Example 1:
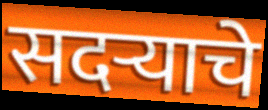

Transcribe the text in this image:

सदऱ्याचे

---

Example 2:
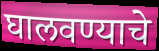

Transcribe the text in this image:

घालवण्याचे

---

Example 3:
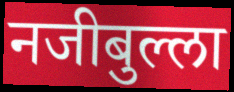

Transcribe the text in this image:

नजीबुल्ला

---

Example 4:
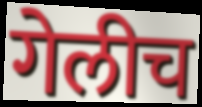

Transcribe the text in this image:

गेलीच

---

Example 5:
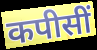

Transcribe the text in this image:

कपीसीं